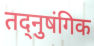
तद्नुषंगिक